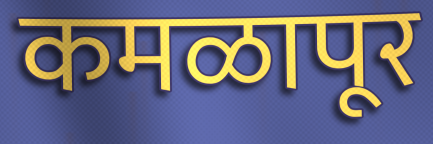
कमळापूर